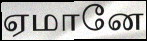
ஏமானே